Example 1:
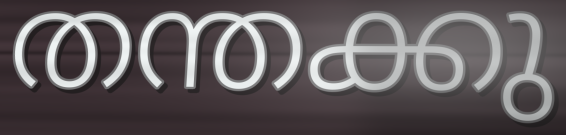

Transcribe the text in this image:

തന്തക്കു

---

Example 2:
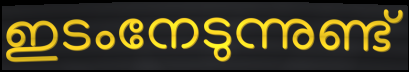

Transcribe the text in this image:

ഇടംനേടുന്നുണ്ട്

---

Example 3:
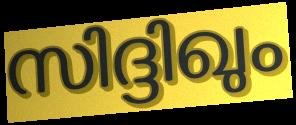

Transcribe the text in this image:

സിദ്ദിഖും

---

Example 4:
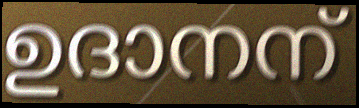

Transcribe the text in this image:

ഉദാനന്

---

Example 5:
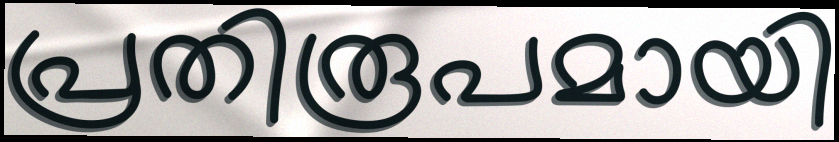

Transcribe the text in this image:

പ്രതിരൂപമായി